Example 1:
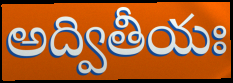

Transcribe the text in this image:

అద్వితీయః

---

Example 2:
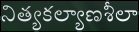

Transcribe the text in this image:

నిత్యకల్యాణశీలా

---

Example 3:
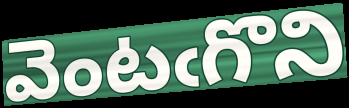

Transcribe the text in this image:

వెంటఁగొని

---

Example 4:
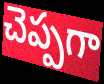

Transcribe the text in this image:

చెప్పగా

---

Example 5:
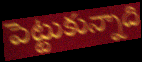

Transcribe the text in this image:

పెట్టుకున్నాది